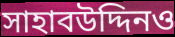
সাহাবউদ্দিনও